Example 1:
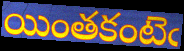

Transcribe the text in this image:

యింతకంటెఁ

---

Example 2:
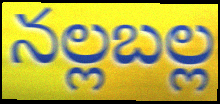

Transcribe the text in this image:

నల్లబల్ల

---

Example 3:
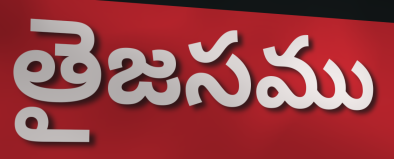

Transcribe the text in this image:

తైజసము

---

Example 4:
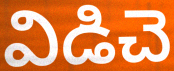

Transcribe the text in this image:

విడిచె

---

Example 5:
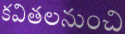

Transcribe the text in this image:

కవితలనుంచి